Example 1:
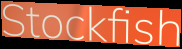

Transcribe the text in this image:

Stockfish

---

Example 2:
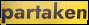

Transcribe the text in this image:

partaken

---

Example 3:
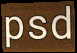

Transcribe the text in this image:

psd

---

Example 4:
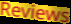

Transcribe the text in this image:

Reviews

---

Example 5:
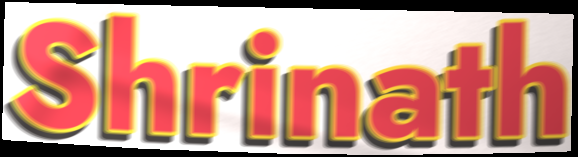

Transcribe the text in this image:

Shrinath